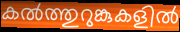
കൽത്തുറുങ്കുകളിൽ